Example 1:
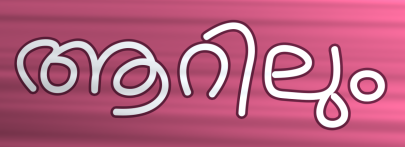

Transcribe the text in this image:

ആറിലും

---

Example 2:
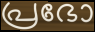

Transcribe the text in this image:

പ്രഭോ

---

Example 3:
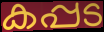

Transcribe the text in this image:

കപ്പട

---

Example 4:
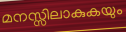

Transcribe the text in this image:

മനസ്സിലാകുകയും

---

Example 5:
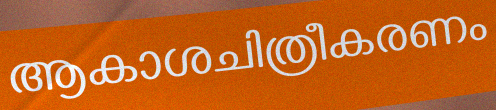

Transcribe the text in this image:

ആകാശചിത്രീകരണം